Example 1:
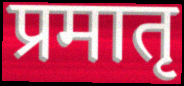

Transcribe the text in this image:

प्रमातृ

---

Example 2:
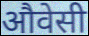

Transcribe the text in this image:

औवेसी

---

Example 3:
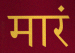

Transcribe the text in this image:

मारं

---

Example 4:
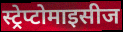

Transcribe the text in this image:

स्ट्रेप्टोमाइसीज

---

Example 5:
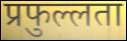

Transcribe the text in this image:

प्रफुल्लता